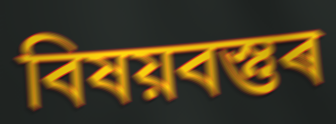
বিষয়বস্তুৰ